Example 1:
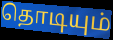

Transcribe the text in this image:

தொடியும்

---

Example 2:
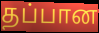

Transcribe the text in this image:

தப்பான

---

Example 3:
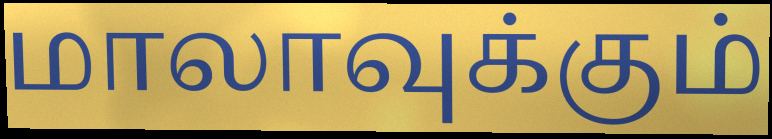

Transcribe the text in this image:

மாலாவுக்கும்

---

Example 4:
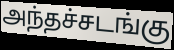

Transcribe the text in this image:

அந்தச்சடங்கு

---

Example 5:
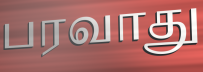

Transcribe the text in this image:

பரவாது